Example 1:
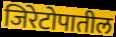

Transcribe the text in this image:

जिरेटोपातील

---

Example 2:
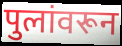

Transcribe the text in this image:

पुलांवरून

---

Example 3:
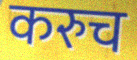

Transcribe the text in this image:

करुच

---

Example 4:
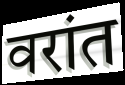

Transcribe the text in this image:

वरांत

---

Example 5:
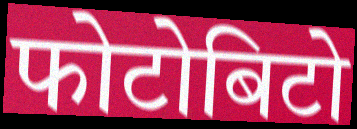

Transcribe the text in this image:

फोटोबिटो